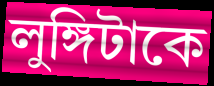
লুঙ্গিটাকে